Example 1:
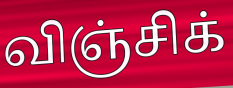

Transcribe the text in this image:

விஞ்சிக்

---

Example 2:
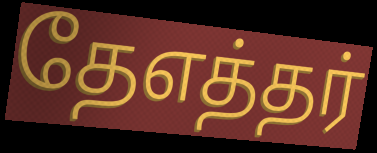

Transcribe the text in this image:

தேஎத்தர்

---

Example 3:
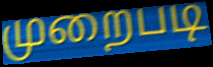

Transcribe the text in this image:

முறைபடி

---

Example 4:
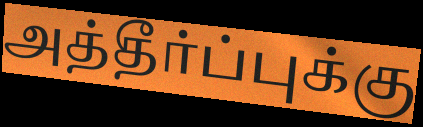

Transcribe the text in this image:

அத்தீர்ப்புக்கு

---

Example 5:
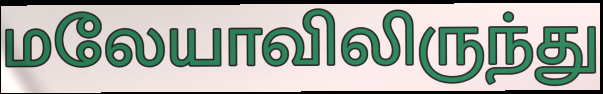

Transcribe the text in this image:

மலேயாவிலிருந்து